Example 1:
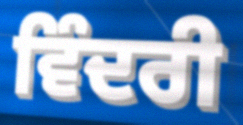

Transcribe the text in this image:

ਵਿੰਦਰੀ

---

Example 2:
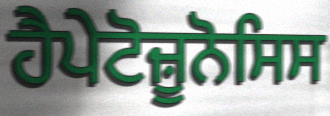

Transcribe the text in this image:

ਹੈਪੇਟੋਜ਼ੂਨੋਸਿਸ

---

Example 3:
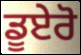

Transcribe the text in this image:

ਡੂਏਰੋ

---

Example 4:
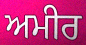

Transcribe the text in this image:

ਅਮੀਰ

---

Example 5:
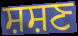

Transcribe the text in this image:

ਸ਼ਸ਼ਣ